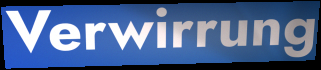
Verwirrung